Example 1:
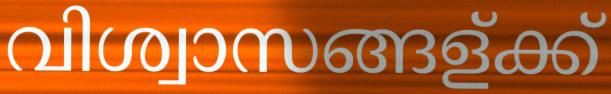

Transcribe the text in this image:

വിശ്വാസങ്ങള്ക്ക്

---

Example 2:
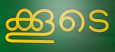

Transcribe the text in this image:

ക്കൂടെ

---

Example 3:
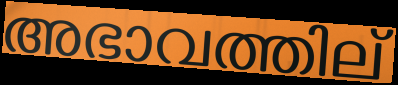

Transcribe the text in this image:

അഭാവത്തില്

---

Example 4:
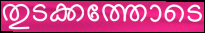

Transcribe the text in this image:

തുടക്കത്തോടെ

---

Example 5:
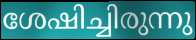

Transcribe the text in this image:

ശേഷിച്ചിരുന്നു